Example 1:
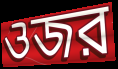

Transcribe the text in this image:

ওজর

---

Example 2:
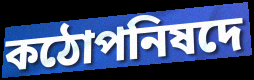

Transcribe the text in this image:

কঠোপনিষদে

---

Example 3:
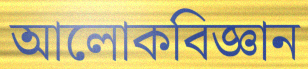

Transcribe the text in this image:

আলোকবিজ্ঞান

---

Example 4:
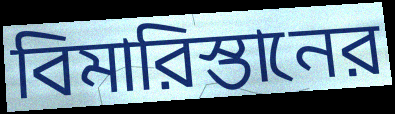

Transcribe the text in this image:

বিমারিস্তানের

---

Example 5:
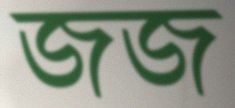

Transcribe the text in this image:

জজ